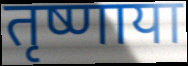
तृष्णाया